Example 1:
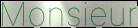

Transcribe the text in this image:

Monsieur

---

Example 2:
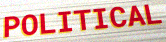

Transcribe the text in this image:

POLITICAL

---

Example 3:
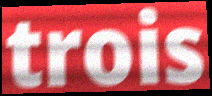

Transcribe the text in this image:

trois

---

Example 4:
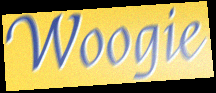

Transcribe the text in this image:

Woogie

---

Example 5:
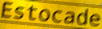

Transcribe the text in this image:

Estocade